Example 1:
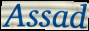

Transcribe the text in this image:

Assad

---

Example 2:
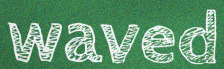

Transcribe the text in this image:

waved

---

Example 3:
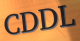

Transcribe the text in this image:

CDDL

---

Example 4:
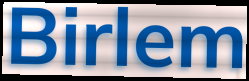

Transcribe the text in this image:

Birlem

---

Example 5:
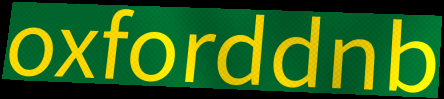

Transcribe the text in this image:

oxforddnb